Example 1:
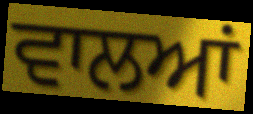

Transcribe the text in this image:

ਵਾਲਆਂ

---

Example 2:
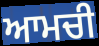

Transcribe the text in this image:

ਆਮਚੀ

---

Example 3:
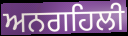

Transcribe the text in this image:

ਅਨਗਹਿਲੀ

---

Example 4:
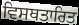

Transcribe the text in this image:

ਵਿਸਥਤਾਰਿਤ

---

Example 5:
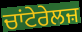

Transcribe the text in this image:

ਚਾਂਟੇਰੇਲਜ਼